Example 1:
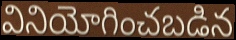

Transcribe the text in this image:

వినియోగించబడిన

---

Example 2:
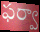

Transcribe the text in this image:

ఫర్వా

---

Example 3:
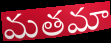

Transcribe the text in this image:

మతమా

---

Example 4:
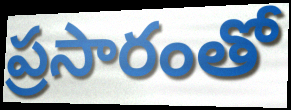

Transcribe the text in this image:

ప్రసారంతో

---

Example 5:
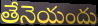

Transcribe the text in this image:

తేనెయందు